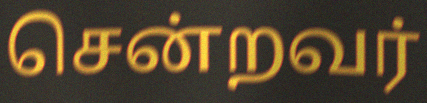
சென்றவர்